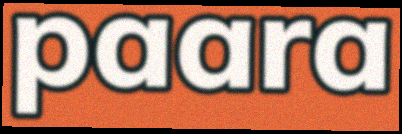
paara